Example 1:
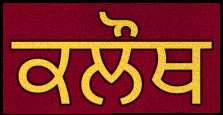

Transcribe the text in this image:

ਕਲੌਥ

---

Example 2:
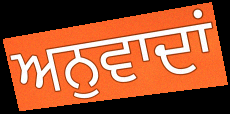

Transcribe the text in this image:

ਅਨੁਵਾਦਾਂ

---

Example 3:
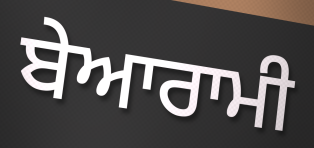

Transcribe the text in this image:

ਬੇਆਰਾਮੀ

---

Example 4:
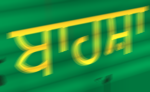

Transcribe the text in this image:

ਬਾਹਸ਼ਾ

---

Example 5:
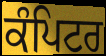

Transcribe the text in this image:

ਕੰਪਿਟਰ